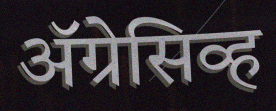
ॲग्रेसिव्ह